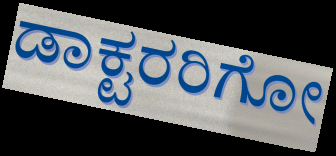
ಡಾಕ್ಟರರಿಗೋ